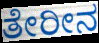
ತೇರೀನ